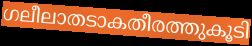
ഗലീലാതടാകതീരത്തുകൂടി